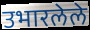
उभारलेले